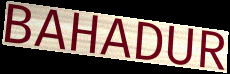
BAHADUR